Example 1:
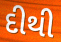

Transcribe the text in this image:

દીથી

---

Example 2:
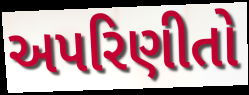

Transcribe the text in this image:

અપરિણીતો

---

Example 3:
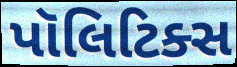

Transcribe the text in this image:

પૉલિટિક્સ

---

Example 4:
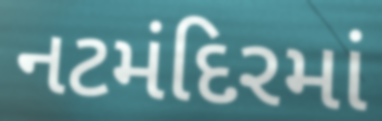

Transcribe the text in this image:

નટમંદિરમાં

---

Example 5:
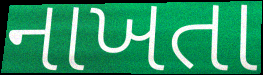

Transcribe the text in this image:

નાખતા